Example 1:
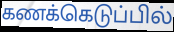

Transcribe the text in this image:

கணக்கெடுப்பில்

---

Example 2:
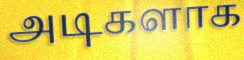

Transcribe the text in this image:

அடிகளாக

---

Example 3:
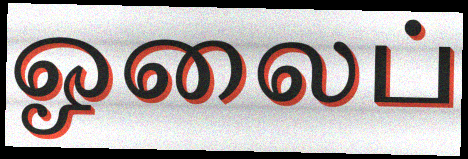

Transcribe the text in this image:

ஓலைப்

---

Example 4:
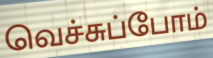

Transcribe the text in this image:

வெச்சுப்போம்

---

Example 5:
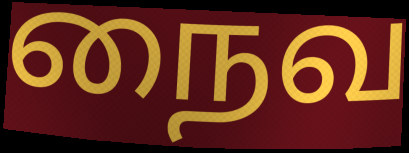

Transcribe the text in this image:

நைவ